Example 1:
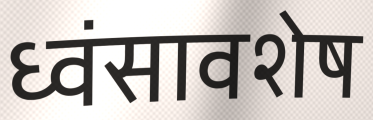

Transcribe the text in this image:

ध्वंसावशेष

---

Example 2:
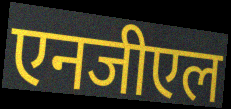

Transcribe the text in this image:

एनजीएल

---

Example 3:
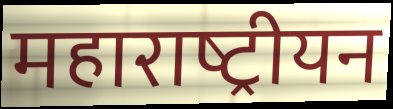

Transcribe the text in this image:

महाराष्ट्रीयन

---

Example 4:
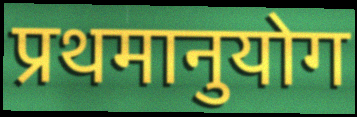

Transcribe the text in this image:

प्रथमानुयोग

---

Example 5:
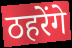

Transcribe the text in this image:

ठहरेंगे